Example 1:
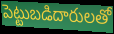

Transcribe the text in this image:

పెట్టుబడిదారులతో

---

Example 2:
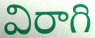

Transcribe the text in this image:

విరాగి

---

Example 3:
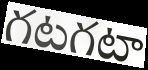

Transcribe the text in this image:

గటగటా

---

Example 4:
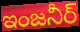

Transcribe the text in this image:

ఇంజనీర్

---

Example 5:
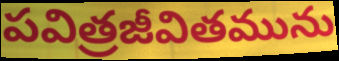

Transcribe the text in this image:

పవిత్రజీవితమును